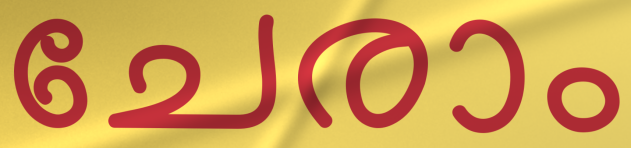
ചേരാം